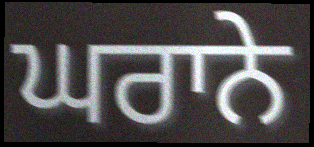
ਘਰਾਨੇ